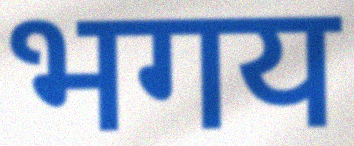
भगय